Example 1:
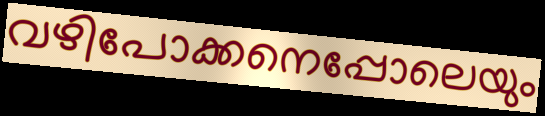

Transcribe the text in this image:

വഴിപോക്കനെപ്പോലെയും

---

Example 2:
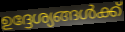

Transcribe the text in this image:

ഉദ്ദേശ്യങ്ങൾക്ക്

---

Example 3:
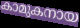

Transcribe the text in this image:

കാമുകനായ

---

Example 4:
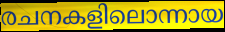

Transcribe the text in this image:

രചനകളിലൊന്നായ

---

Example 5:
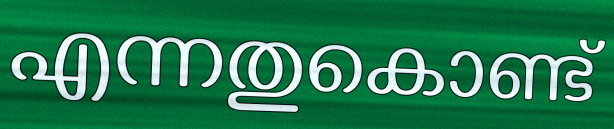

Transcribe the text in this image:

എന്നതുകൊണ്ട്